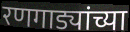
रणगाड्यांच्या